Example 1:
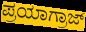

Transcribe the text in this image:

ಪ್ರಯಾಗ್ರಾಜ್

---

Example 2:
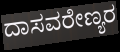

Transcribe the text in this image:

ದಾಸವರೇಣ್ಯರ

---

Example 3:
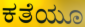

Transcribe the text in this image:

ಕತೆಯೂ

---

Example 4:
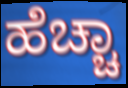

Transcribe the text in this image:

ಹೆಚ್ಚಾ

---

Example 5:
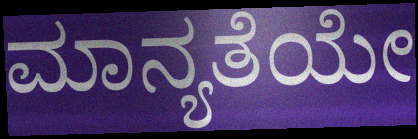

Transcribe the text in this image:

ಮಾನ್ಯತೆಯೇ